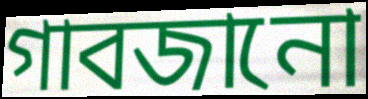
গাবজানো